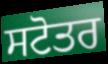
ਸਟੋਤਰ